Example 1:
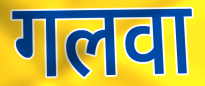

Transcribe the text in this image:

गलवा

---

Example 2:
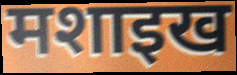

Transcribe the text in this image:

मशाइख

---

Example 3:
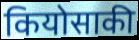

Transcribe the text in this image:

कियोसाकी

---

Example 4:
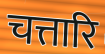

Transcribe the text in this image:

चत्तारि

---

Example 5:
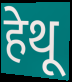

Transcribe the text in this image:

हेथू